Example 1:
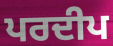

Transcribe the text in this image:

ਪਰਦੀਪ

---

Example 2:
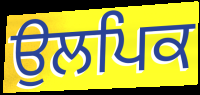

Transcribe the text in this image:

ਉਲਪਿਕ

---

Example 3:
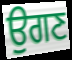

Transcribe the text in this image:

ਉਗਣ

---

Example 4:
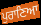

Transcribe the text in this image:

ਪੁਰਾਣਿਆ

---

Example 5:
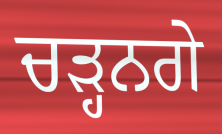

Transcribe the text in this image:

ਚੜ੍ਹਨਗੇ